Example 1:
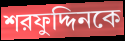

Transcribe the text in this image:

শরফুদ্দিনকে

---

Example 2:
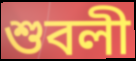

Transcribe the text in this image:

শুবলী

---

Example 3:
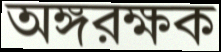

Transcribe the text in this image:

অঙ্গরক্ষক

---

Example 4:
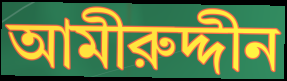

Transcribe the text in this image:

আমীরুদ্দীন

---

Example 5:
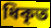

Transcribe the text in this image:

ধিকৃত